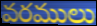
వరములు